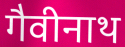
गैवीनाथ